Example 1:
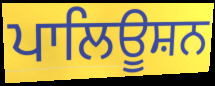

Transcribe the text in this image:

ਪਾਲਿਊਸ਼ਨ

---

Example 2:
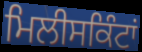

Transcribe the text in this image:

ਮਿਲੀਸਕਿੰਟਾਂ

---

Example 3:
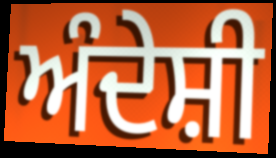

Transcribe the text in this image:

ਅੰਦੇਸ਼ੀ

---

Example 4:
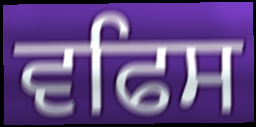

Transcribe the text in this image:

ਵਫਿਸ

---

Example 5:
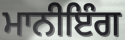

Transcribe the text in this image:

ਮਾਨੀਇੰਗ